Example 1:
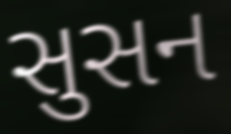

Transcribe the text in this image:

સુસન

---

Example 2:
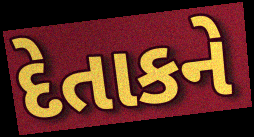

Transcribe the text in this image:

દેતાકને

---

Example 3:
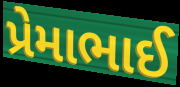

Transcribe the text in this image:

પ્રેમાભાઈ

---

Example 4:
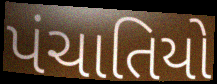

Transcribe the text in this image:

પંચાતિયો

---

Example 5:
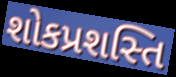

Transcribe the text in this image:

શોકપ્રશસ્તિ